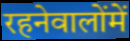
रहनेवालोंमें